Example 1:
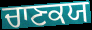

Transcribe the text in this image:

ਚਾਣਕਯ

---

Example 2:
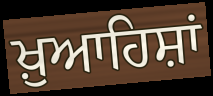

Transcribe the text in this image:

ਖ਼ੁਆਹਿਸ਼ਾਂ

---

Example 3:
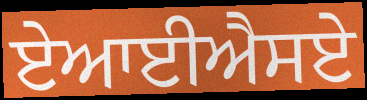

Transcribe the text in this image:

ਏਆਈਐਸਏ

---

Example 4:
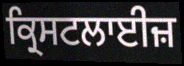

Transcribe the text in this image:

ਕ੍ਰਿਸਟਲਾਈਜ਼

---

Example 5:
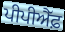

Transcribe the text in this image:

ਪੀਪੀਐੱਫ਼